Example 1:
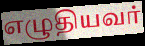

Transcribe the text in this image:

எழுதியவர்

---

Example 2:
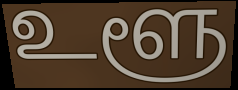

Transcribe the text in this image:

உளூ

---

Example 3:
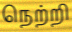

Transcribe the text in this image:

நெற்றி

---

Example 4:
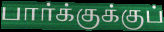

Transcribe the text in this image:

பார்க்குக்குப்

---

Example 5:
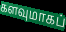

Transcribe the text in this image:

களவுமாகப்